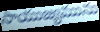
సాయుజ్యమును